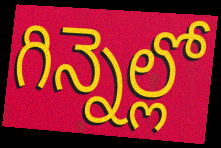
గిన్నెల్లో